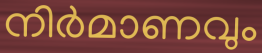
നിർമാണവും